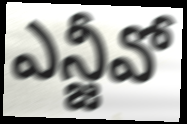
ఎన్జీవో